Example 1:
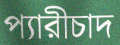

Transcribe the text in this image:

প্যারীচাদ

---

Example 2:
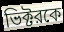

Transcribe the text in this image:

ভিক্টরকে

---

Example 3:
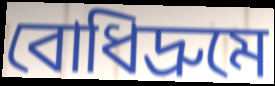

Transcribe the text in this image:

বোধিদ্রুমে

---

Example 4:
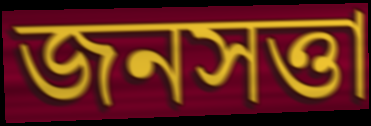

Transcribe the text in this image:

জনসত্তা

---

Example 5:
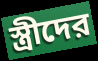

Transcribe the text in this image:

স্ত্রীদের